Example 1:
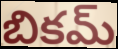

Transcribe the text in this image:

బికమ్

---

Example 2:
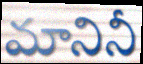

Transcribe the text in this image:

మానినీ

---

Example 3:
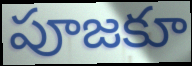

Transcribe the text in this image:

పూజకూ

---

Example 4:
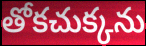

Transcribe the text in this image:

తోకచుక్కను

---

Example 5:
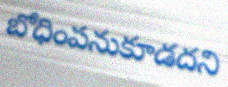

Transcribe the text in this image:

బోధింపనుకూడదని